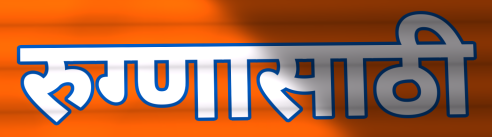
रुग्णासाठी